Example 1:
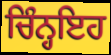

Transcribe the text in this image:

ਚਿੰਨ੍ਹਇਹ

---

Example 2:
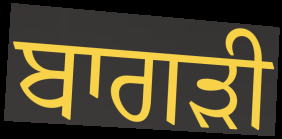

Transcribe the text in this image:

ਬਾਗੜੀ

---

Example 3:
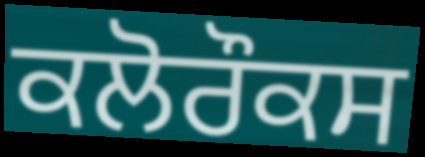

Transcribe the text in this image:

ਕਲੋਰੌਕਸ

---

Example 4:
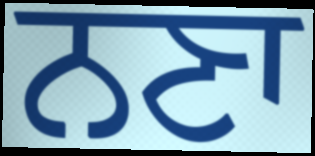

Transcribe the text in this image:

ਨਣਾ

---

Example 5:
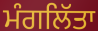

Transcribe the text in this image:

ਮੰਗਲਿੱਤਾ